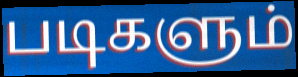
படிகளும்